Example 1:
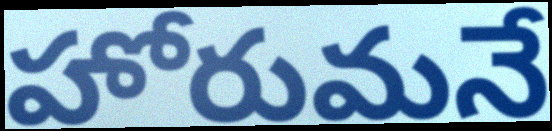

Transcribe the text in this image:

హోరుమనే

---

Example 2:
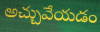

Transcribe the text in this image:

అచ్చువేయడం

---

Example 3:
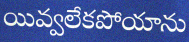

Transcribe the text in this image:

యివ్వలేకపోయాను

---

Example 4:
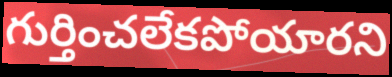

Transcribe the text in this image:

గుర్తించలేకపోయారని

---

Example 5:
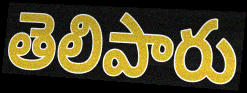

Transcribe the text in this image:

తెలిపారు